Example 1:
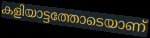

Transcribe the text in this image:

കളിയാട്ടത്തോടെയാണ്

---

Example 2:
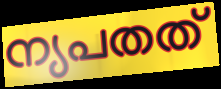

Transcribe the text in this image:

ന്യപതത്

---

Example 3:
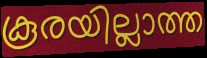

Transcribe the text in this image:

കൂരയില്ലാത്ത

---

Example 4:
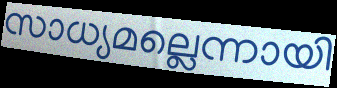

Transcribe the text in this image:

സാധ്യമല്ലെന്നായി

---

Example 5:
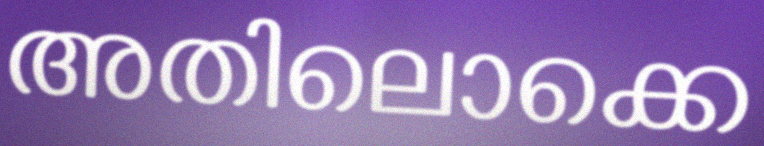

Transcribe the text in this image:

അതിലൊക്കെ